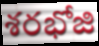
శరభోజి